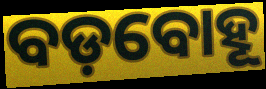
ବଡ଼ବୋହୂ